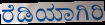
ರೆಡಿಯಾಗಿರಿ